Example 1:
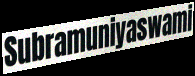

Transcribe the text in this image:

Subramuniyaswami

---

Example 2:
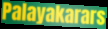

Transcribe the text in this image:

Palayakarars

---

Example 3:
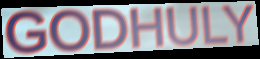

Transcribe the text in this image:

GODHULY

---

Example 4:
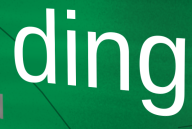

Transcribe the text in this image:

ding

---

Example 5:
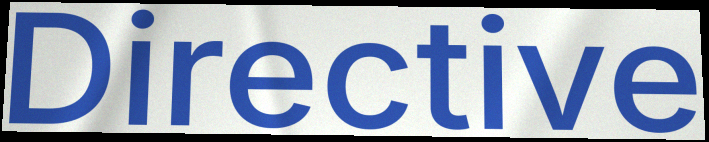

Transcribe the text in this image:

Directive